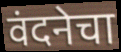
वंदनेचा